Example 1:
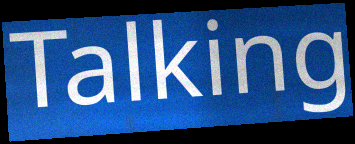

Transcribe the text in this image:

Talking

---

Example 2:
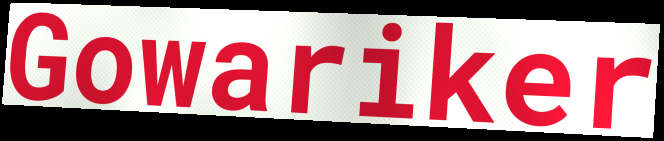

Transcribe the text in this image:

Gowariker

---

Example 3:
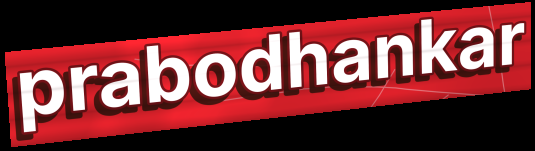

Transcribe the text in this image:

prabodhankar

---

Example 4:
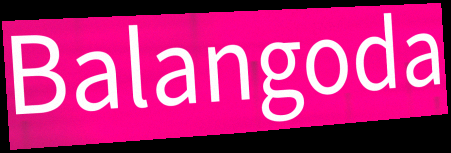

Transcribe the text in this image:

Balangoda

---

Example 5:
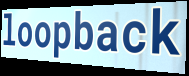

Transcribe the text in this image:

loopback